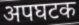
अपघटक